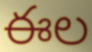
ఈల